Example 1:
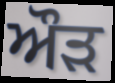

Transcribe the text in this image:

ਔਡ਼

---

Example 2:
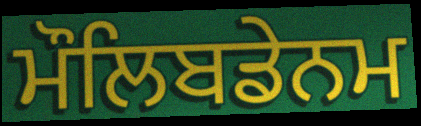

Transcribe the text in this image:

ਮੌਲਿਬਡੇਨਮ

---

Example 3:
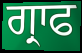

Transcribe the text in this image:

ਗ੍ਰਾਫ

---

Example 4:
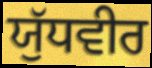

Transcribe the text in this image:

ਯੁੱਧਵੀਰ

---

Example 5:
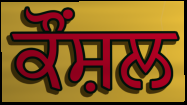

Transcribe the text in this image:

ਕੌਂਸ਼ਲ